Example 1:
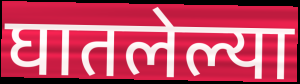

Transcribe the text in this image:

घातलेल्या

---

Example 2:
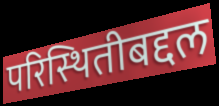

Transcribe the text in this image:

परिस्थितीबद्दल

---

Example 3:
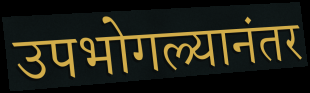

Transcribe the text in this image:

उपभोगल्यानंतर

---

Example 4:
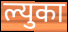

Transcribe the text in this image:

ल्युका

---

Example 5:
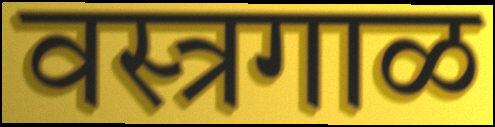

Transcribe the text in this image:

वस्त्रगाळ